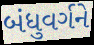
બંધુવર્ગને